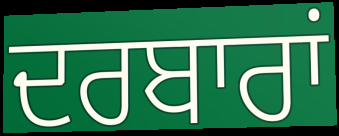
ਦਰਬਾਰਾਂ